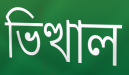
ভিত্থাল